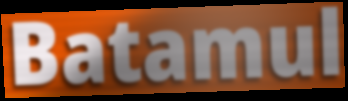
Batamul